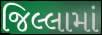
જિલ્લામાં